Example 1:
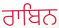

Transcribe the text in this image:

ਰਾਬਿਨ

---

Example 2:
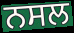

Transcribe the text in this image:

ਨਸਲ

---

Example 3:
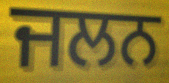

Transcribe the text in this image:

ਜਲਨ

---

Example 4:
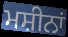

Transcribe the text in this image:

ਮਸ਼ੀਨਾਂ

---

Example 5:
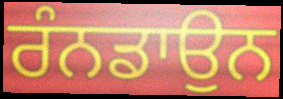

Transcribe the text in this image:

ਰੰਨਡਾਉਨ